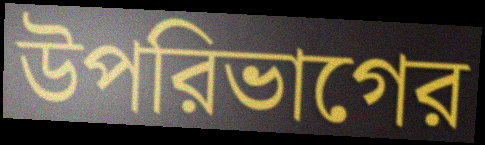
উপরিভাগের